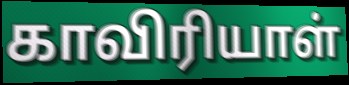
காவிரியாள்